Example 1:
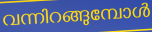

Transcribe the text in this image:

വന്നിറങ്ങുമ്പോൾ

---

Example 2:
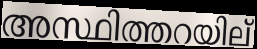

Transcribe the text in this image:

അസ്ഥിത്തറയില്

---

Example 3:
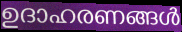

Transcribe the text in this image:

ഉദാഹരണങ്ങൾ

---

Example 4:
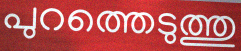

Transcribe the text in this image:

പുറത്തെടുത്തു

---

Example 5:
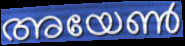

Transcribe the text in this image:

അയേൺ